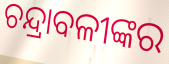
ଚନ୍ଦ୍ରାବଳୀଙ୍କର